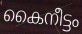
കൈനീട്ടം